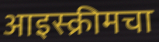
आइस्क्रीमचा